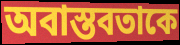
অবাস্তবতাকে